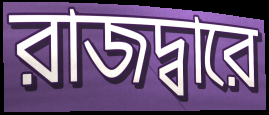
রাজদ্বারে